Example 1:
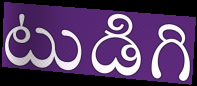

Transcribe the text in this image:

టుడిగి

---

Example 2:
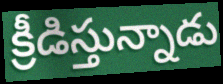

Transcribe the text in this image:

క్రీడిస్తున్నాడు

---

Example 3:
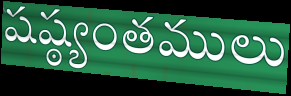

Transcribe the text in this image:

షష్ఠ్యంతములు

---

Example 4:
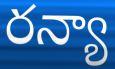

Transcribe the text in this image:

రన్యా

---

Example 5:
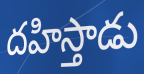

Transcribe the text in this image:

దహిస్తాడు